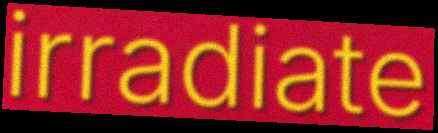
irradiate